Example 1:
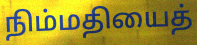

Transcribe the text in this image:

நிம்மதியைத்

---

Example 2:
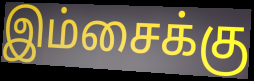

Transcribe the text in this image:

இம்சைக்கு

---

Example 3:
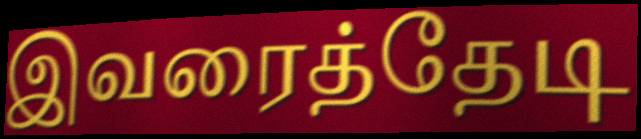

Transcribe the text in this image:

இவரைத்தேடி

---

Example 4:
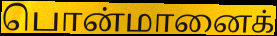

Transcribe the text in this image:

பொன்மானைக்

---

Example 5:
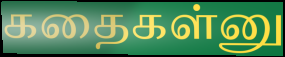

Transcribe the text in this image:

கதைகள்னு